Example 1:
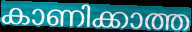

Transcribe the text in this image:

കാണിക്കാത്ത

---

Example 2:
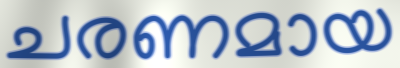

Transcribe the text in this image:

ചരണമായ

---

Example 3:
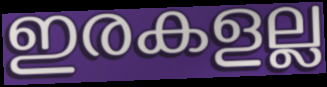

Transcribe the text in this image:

ഇരകളല്ല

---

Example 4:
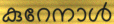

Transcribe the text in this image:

കുറേനാൾ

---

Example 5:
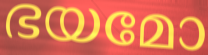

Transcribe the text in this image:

ഭയമോ